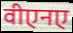
वीएनए